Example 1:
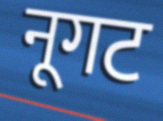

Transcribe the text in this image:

नूगट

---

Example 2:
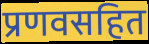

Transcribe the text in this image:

प्रणवसहित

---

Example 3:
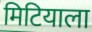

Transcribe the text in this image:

मिटियाला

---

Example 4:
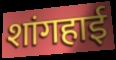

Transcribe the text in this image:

शांगहाई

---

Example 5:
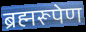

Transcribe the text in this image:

ब्रह्मरूपेण